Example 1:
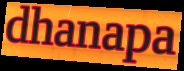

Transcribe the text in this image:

dhanapa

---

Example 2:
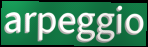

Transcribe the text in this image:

arpeggio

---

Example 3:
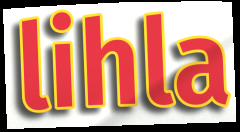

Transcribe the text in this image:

lihla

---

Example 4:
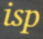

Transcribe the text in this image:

isp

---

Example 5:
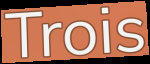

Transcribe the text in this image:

Trois